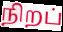
நிறப்